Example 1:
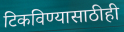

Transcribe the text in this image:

टिकविण्यासाठीही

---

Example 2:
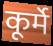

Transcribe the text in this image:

कूर्मे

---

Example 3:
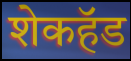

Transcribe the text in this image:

शेकहॅड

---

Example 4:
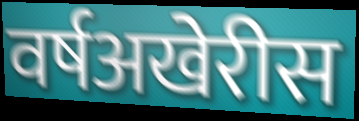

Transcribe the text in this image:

वर्षअखेरीस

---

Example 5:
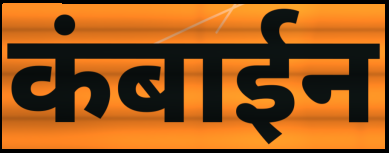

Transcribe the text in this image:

कंबाईन